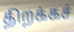
திறக்கச்